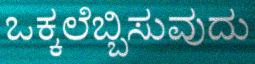
ಒಕ್ಕಲೆಬ್ಬಿಸುವುದು